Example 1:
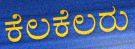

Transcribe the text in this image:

ಕೆಲಕೆಲರು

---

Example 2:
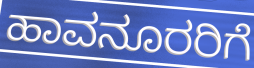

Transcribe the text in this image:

ಹಾವನೂರರಿಗೆ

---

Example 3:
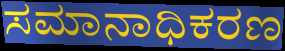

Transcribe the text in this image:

ಸಮಾನಾಧಿಕರಣ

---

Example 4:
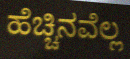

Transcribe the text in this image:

ಹೆಚ್ಚಿನವೆಲ್ಲ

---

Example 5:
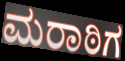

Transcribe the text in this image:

ಮರಾಠಿಗ